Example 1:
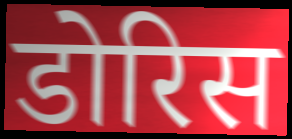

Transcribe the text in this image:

डोरिस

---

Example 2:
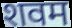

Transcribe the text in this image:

शवम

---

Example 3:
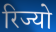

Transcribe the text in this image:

रिज्यो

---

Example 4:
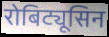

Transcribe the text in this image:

रोबिट्यूसिन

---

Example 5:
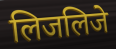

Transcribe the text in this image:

लिजलिजे